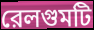
রেলগুমটি